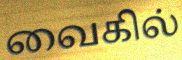
வைகில்